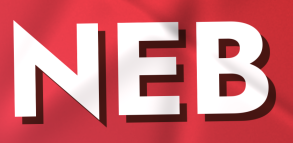
NEB